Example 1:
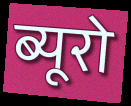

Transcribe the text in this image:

ब्यूरो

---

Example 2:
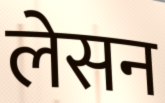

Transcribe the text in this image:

लेसन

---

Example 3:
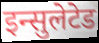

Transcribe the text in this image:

इन्सुलेटेड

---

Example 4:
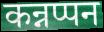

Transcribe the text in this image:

कन्नप्पन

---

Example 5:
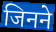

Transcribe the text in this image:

जिनने